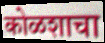
कोळशाचा